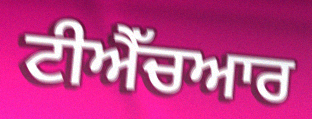
ਟੀਐੱਚਆਰ